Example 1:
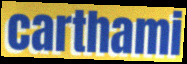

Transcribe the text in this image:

carthami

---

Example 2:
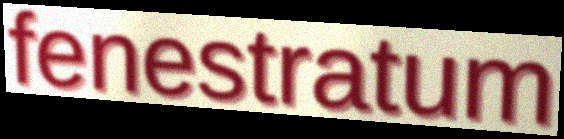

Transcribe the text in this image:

fenestratum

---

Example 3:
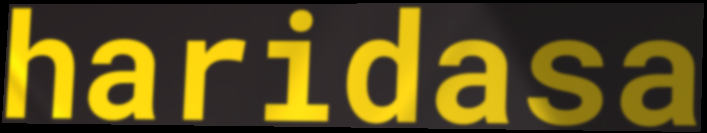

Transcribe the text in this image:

haridasa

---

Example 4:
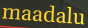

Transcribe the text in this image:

maadalu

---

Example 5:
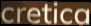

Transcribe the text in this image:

cretica